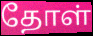
தோள்